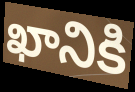
ఖానికి